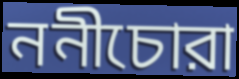
ননীচোরা